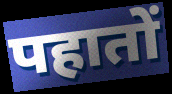
पहातों